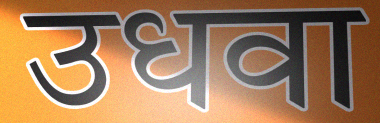
उधवा